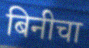
बिनीचा